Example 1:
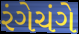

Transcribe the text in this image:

રંગેચંગે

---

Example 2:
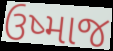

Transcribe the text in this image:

ઉષ્માજ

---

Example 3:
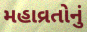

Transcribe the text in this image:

મહાવ્રતોનું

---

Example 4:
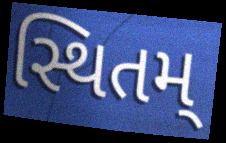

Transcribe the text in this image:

સ્થિતમ્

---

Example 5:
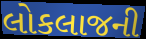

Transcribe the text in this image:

લોકલાજની